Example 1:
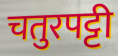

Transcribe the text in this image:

चतुरपट्टी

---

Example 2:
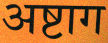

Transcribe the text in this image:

अष्टाग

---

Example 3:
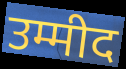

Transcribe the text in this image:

उम्‍मीद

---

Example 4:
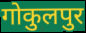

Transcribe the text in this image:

गोकुलपुर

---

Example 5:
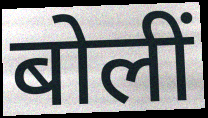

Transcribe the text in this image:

बोलीं